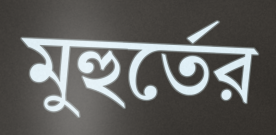
মুহুর্তের